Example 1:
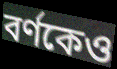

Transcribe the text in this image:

বর্ণকেও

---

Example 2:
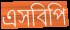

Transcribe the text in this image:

এসবিপি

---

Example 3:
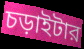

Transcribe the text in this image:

চড়াইটার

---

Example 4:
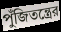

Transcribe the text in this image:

পুঁজিতন্ত্রের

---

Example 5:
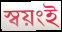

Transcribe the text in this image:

স্বয়ংই